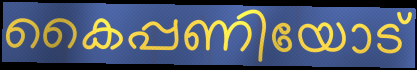
കൈപ്പണിയോട്